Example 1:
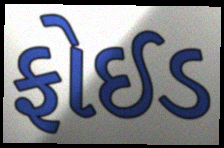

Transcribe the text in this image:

ફોઈડ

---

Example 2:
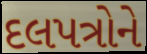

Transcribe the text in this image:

દલપત્રોને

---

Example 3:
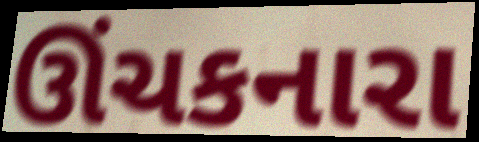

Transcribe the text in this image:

ઊંચકનારા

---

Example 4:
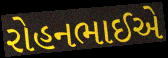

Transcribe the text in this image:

રોહનભાઈએ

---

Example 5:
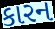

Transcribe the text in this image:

કારન